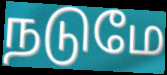
நடுமே